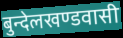
बुन्देलखण्डवासी